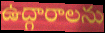
ఉద్గారాలను